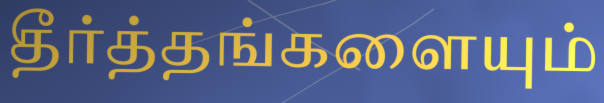
தீர்த்தங்களையும்